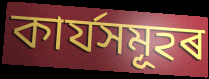
কাৰ্যসমূহৰ